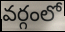
వర్గంలో